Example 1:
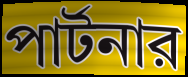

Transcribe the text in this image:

পার্টনার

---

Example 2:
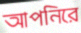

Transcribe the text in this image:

আপনিরে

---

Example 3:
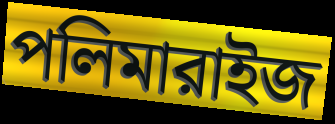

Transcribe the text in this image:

পলিমারাইজ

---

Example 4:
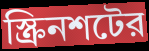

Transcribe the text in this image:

স্ক্রিনশটের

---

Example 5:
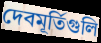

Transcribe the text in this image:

দেবমূর্তিগুলি